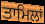
ਤਾਮਿਲਾਂ